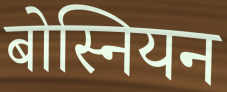
बोस्नियन